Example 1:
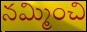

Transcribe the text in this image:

నమ్మించి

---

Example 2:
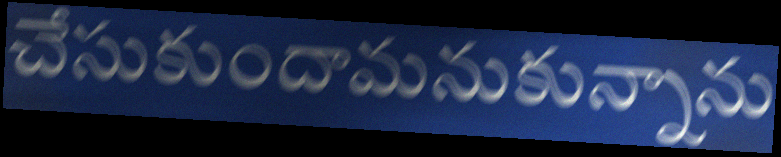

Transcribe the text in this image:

చేసుకుందామనుకున్నాను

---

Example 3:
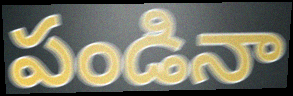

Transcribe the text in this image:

పండినా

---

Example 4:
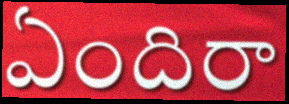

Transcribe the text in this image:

ఏందిరా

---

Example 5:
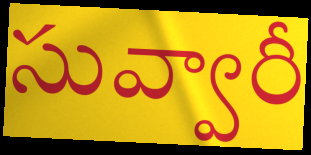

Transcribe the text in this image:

సువ్వారీ